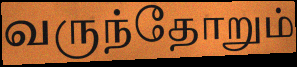
வருந்தோறும்